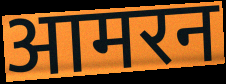
आमरन